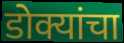
डोक्यांचा